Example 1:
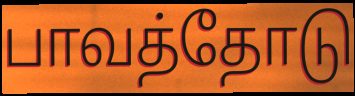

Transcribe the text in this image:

பாவத்தோடு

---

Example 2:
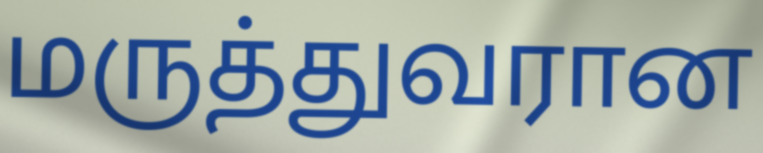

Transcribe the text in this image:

மருத்துவரான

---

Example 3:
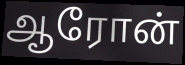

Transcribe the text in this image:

ஆரோன்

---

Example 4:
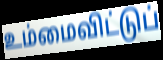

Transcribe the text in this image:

உம்மைவிட்டுப்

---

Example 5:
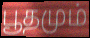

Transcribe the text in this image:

பூதமும்